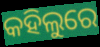
କହିଲୁରେ